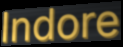
Indore